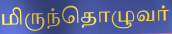
மிருந்தொழுவர்